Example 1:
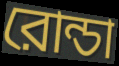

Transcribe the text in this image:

রোন্ডা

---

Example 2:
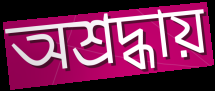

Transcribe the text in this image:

অশ্রদ্ধায়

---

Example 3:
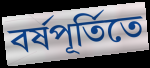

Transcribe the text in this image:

বর্ষপূর্তিতে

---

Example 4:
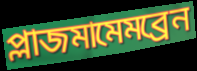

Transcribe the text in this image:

প্লাজমামেমব্রেন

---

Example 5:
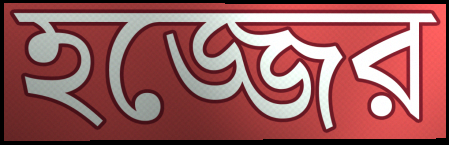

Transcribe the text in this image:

হজ্জের